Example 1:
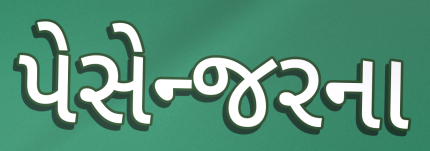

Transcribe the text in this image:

પેસેન્જરના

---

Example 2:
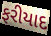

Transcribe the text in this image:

ફરીયાદ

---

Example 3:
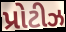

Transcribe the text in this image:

પ્રોટીઝ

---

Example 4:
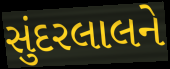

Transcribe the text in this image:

સુંદરલાલને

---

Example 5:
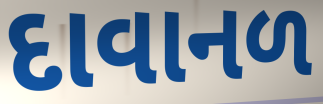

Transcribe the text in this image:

દાવાનળ